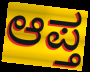
ಆಪ್ತ